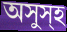
অসুস্হ